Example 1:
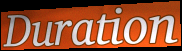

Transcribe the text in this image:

Duration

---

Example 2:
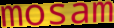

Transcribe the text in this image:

mosam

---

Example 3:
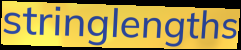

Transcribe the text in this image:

stringlengths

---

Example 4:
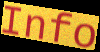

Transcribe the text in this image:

Info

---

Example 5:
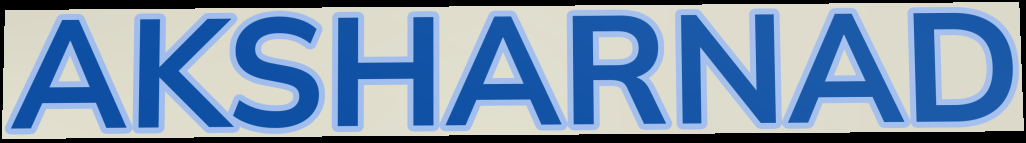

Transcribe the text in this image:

AKSHARNAD